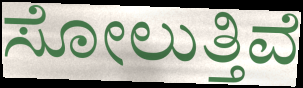
ಸೋಲುತ್ತಿವೆ